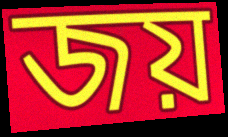
জয়